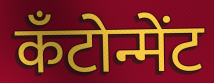
कँटोन्मेंट